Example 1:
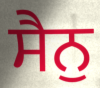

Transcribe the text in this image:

ਸੈਨੁ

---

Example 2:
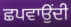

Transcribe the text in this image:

ਛਪਵਾਉਂਦੀ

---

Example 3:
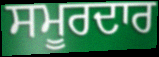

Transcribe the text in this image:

ਸਮੂਰਦਾਰ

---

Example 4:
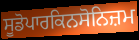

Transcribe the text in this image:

ਸੂਡੋਪਾਰਕਿਨਸੋਨਿਜ਼ਮ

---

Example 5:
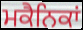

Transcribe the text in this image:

ਮਕੈਨਿਕਾਂ